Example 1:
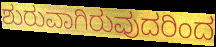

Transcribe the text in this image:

ಶುರುವಾಗಿರುವುದರಿಂದ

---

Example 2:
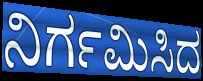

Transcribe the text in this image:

ನಿರ್ಗಮಿಸಿದ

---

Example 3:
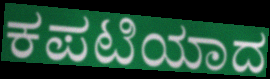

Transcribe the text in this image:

ಕಪಟಿಯಾದ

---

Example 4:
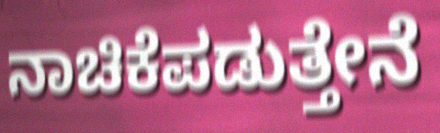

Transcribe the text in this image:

ನಾಚಿಕೆಪಡುತ್ತೇನೆ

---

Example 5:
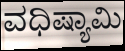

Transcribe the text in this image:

ವಧಿಷ್ಯಾಮಿ